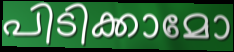
പിടിക്കാമോ